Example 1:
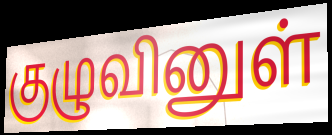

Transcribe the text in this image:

குழுவினுள்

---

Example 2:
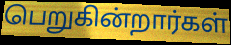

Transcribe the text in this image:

பெறுகின்றார்கள்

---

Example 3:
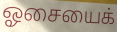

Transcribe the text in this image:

ஓசையைக்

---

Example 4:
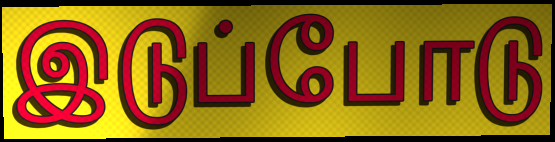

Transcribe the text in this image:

இடுப்போடு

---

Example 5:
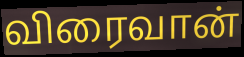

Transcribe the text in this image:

விரைவான்